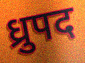
ध्रुपद